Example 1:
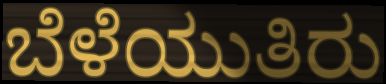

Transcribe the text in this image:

ಬೆಳೆಯುತಿರು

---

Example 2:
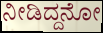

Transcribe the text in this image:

ನೀಡಿದ್ದನೋ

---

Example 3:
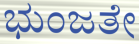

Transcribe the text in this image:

ಭುಂಜತೇ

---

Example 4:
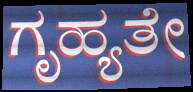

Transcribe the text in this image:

ಗೃಹ್ಯತೇ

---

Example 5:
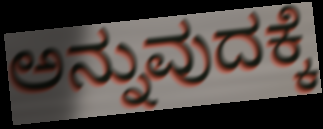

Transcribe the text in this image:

ಅನ್ನುವುದಕ್ಕೆ